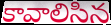
కావాలిసిన